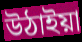
উঠাইয়া